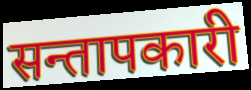
सन्तापकारी